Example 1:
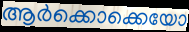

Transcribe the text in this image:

ആർക്കൊക്കെയോ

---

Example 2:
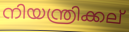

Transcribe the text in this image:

നിയന്ത്രിക്കല്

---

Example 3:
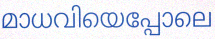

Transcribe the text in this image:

മാധവിയെപ്പോലെ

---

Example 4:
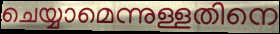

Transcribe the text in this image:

ചെയ്യാമെന്നുള്ളതിനെ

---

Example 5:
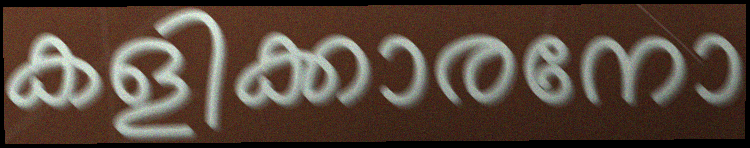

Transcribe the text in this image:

കളിക്കാരനോ